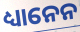
ଧ୍ୟାନେନ